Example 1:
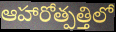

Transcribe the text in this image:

ఆహారోత్పత్తిలో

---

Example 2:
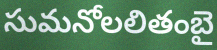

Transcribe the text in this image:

సుమనోలలితంబై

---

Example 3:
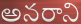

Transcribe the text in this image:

అనరాని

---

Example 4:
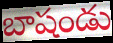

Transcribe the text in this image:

బాషండు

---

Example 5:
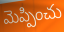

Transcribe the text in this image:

మెప్పించు